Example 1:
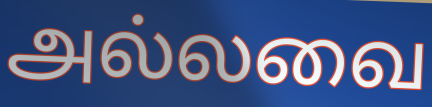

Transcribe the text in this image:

அல்லவை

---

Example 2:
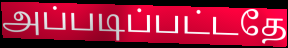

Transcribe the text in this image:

அப்படிப்பட்டதே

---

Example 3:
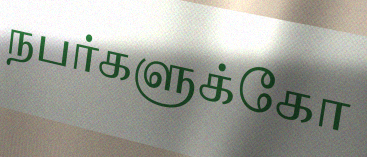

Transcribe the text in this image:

நபர்களுக்கோ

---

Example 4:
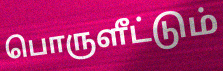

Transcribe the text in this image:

பொருளீட்டும்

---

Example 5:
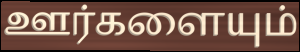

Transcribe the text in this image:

ஊர்களையும்